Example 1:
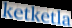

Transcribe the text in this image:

ketketla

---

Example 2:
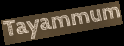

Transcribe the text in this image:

Tayammum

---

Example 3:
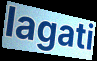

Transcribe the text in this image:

lagati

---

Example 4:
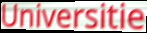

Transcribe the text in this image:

Universitie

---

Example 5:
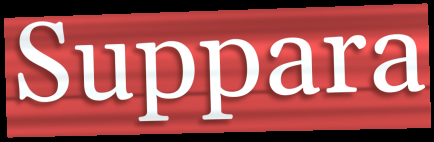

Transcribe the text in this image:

Suppara